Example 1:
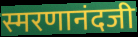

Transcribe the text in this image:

स्मरणानंदजी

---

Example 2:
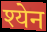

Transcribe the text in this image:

श्येन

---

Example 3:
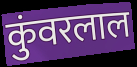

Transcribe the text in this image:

कुंवरलाल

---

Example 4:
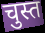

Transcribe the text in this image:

चुस्त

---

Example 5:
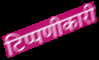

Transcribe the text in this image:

टिप्पणीकारी